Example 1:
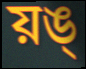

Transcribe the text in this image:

য়ঙ্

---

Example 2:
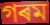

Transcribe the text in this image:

গৰম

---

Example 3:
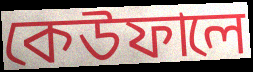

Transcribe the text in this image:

কেউফালে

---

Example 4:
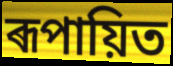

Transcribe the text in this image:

ৰূপায়িত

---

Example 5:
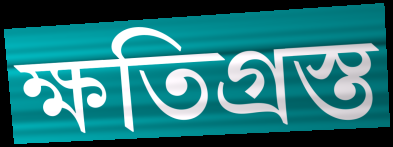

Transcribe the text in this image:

ক্ষতিগ্ৰস্ত